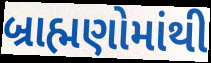
બ્રાહ્મણોમાંથી